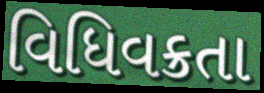
વિધિવક્રતા